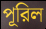
পূরিল